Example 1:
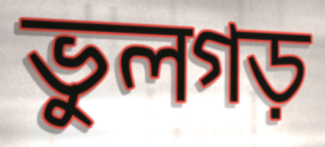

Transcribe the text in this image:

ভুলগড়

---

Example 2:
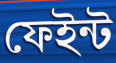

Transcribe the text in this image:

ফেইন্ট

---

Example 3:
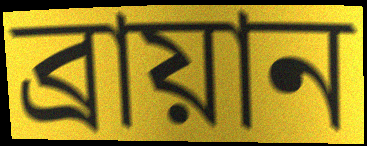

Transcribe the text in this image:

ব্রায়ান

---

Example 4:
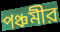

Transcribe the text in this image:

পঞ্চমীর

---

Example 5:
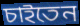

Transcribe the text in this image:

চাইতেন